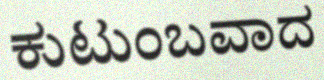
ಕುಟುಂಬವಾದ